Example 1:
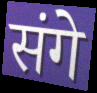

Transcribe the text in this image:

संगे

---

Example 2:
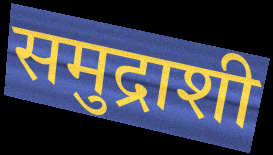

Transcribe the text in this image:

समुद्राशी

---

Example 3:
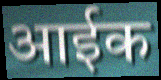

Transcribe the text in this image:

आईक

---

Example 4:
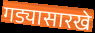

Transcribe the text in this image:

गड्यासारखे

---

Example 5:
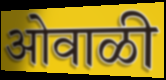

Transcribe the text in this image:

ओवाळी